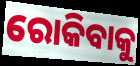
ରୋକିବାକୁ